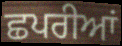
ਛਪਰੀਆਂ